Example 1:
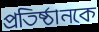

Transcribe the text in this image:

প্রতিষ্ঠানকে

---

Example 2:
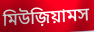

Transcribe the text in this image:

মিউজ়িয়ামস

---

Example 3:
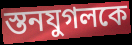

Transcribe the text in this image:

স্তনযুগলকে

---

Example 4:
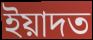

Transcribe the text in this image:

ইয়াদত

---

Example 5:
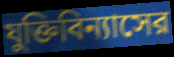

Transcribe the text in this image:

যুক্তিবিন্যাসের